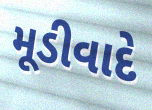
મૂડીવાદે